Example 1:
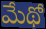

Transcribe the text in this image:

మేథో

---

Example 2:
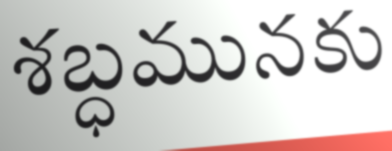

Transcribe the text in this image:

శబ్ధమునకు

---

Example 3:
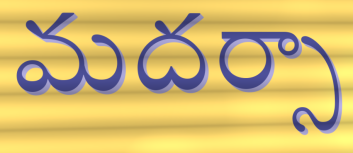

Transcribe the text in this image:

మదర్సా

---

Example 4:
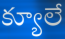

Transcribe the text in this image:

క్యూలే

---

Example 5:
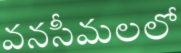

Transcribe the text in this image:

వనసీమలలో